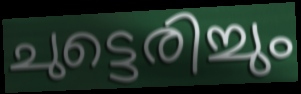
ചുട്ടെരിച്ചും